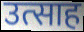
उत्‍साह